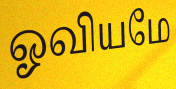
ஓவியமே